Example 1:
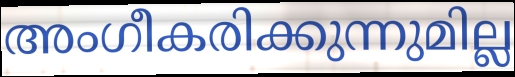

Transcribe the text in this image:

അംഗീകരിക്കുന്നുമില്ല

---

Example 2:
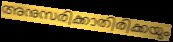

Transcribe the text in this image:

അനുസരിക്കാതിരിക്കയും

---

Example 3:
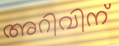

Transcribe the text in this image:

അറിവിന്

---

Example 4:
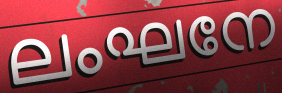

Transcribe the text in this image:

ലംഘനേ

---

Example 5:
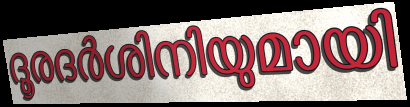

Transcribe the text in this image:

ദൂരദർശിനിയുമായി